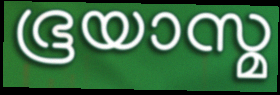
ഭൂയാസ്മ